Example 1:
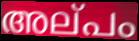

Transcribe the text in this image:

അല്‌പം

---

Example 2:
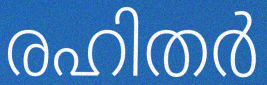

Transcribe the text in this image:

രഹിതർ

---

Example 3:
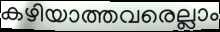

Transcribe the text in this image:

കഴിയാത്തവരെല്ലാം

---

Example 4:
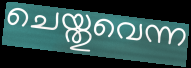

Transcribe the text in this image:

ചെയ്തുവെന്ന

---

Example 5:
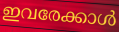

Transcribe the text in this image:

ഇവരേക്കാൾ